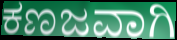
ಕಣಜವಾಗಿ